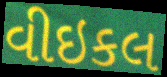
વીઇકલ